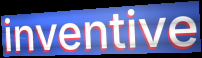
inventive